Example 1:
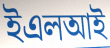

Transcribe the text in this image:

ইএলআই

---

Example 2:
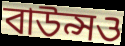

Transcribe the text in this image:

বাউন্সও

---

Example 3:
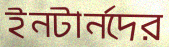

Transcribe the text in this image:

ইনটার্নদের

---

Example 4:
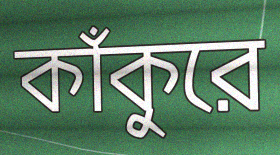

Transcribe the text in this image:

কাঁকুরে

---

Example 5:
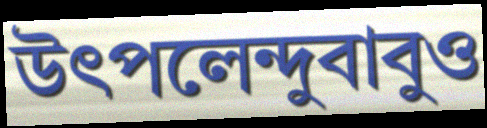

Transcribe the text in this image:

উৎপলেন্দুবাবুও